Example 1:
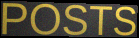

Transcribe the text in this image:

POSTS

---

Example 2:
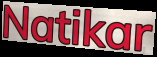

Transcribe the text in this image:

Natikar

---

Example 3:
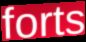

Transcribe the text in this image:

forts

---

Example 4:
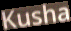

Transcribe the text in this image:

Kusha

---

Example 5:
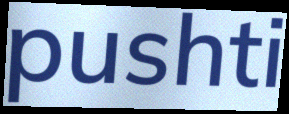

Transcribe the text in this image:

pushti